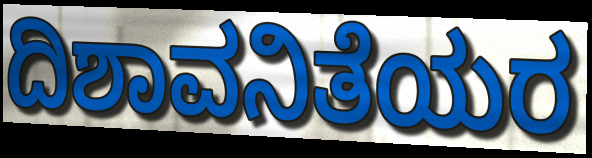
ದಿಶಾವನಿತೆಯರ